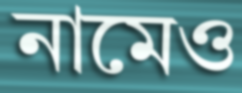
নামেও